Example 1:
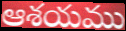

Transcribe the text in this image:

ఆశయము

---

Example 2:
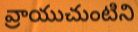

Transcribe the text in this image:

వ్రాయుచుంటిని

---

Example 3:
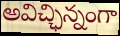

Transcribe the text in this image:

అవిచ్ఛిన్నంగా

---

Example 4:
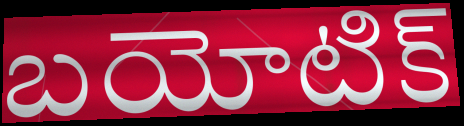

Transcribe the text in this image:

బయోటిక్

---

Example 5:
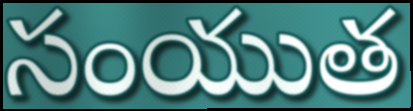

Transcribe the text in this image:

సంయుత